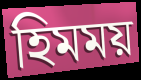
হিমময়